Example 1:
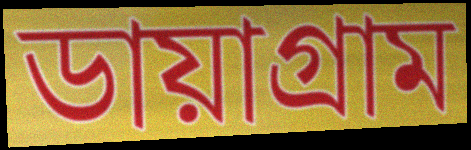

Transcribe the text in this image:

ডায়াগ্রাম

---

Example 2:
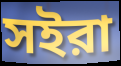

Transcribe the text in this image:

সইরা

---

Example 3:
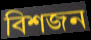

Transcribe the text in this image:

বিশজন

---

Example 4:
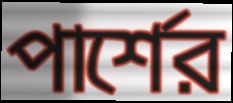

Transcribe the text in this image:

পার্শের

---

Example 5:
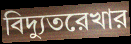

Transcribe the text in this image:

বিদ্যুতরেখার